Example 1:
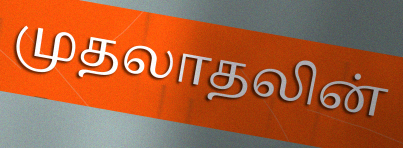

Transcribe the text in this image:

முதலாதலின்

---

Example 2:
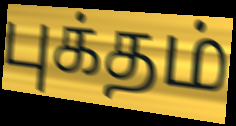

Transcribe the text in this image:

புக்தம்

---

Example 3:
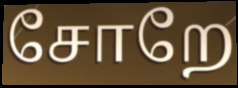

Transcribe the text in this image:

சோறே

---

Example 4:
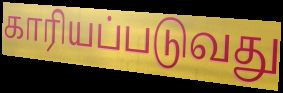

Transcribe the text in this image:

காரியப்படுவது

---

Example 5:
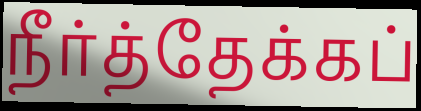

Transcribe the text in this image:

நீர்த்தேக்கப்